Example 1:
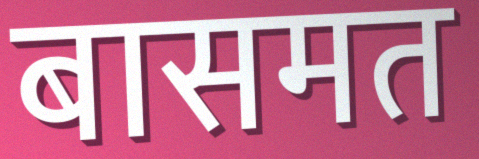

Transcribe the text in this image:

बासमत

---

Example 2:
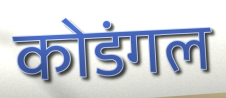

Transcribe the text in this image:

कोडंगल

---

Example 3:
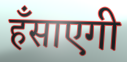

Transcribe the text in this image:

हँसाएगी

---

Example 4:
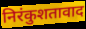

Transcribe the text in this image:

निरंकुशतावाद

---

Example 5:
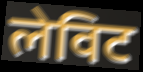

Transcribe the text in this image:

लेविट